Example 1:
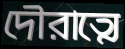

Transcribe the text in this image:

দৌরাত্মে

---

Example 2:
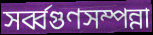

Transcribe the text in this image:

সর্ব্বগুণসম্পন্না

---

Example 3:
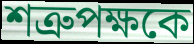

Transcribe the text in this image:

শত্রুপক্ষকে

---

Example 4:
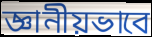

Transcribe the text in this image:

জ্ঞানীয়ভাবে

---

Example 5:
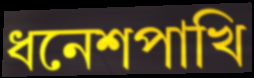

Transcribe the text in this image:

ধনেশপাখি